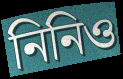
নিনিও